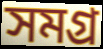
সমগ্ৰ